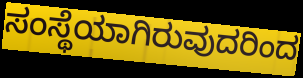
ಸಂಸ್ಥೆಯಾಗಿರುವುದರಿಂದ